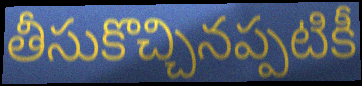
తీసుకొచ్చినప్పటికీ